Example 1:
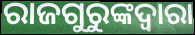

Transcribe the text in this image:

ରାଜଗୁରୁଙ୍କଦ୍ୱାରା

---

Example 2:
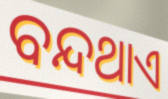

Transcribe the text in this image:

ବନ୍ଦଥାଏ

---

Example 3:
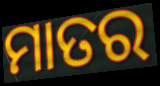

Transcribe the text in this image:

ମାତର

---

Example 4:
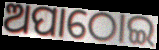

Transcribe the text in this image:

ଅପାଠୋଇ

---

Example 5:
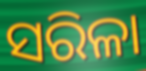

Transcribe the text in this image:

ସରିଳା